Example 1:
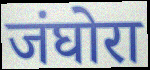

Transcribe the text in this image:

जंघोरा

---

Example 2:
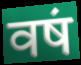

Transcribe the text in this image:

वषं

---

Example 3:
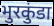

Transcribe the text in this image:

भुरकुंडा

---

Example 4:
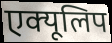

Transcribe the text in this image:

एक्यूलिप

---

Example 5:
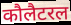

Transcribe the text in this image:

कौलैटरल